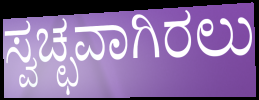
ಸ್ವಚ್ಛವಾಗಿರಲು